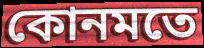
কোনমতে